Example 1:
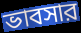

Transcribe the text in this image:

ভাবসার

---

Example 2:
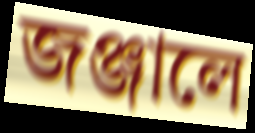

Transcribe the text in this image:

জঞ্জালে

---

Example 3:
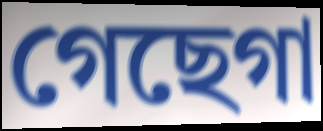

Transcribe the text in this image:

গেছেগা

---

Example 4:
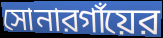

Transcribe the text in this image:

সোনারগাঁয়ের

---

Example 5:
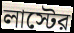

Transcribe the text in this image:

লাস্টের